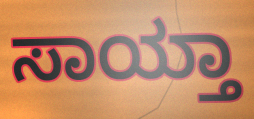
ಸಾಯ್ತಾ